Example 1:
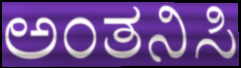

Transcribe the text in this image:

ಅಂತನಿಸಿ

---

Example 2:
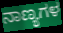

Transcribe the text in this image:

ನಾಣ್ಯಗಳ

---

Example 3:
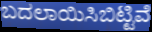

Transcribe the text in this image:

ಬದಲಾಯಿಸಿಬಿಟ್ಟಿವೆ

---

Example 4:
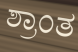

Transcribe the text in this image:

ಶ್ರಾಂತ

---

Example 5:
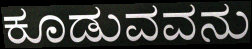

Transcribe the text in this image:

ಕೂಡುವವನು